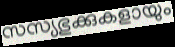
സസ്യഭുക്കുകളായും